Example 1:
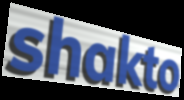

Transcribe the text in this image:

shakto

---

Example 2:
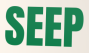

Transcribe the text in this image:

SEEP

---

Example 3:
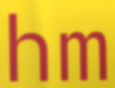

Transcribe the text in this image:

hm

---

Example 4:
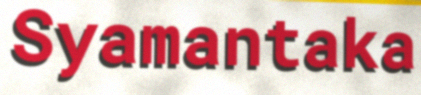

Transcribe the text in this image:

Syamantaka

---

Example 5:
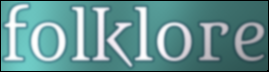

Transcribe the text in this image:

folklore